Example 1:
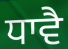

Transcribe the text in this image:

ਧਾਵੈ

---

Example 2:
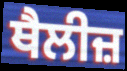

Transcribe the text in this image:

ਥੈਲੀਜ਼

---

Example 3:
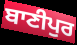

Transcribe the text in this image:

ਬਾਣੀਪੁਰ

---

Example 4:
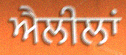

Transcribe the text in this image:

ਐਲੀਲਾਂ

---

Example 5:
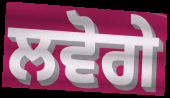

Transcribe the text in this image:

ਲਵੋਗੇ